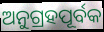
ଅନୁଗ୍ରହପୂର୍ବକ